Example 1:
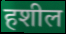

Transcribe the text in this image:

हशील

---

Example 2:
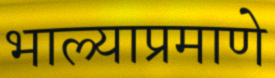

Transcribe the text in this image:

भाल्याप्रमाणे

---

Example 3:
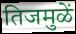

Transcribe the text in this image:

तिजमुळें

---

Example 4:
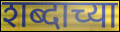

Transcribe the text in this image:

शब्दाच्या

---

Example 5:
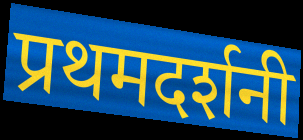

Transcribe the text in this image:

प्रथमदर्शनी